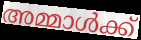
അമ്മാൾക്ക്